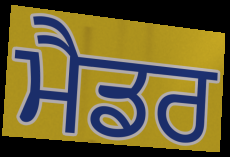
ਮੈਡਰ